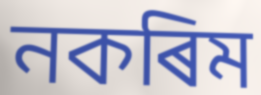
নকৰিম